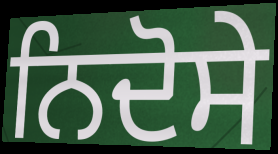
ਨਿਦੋਸੇ